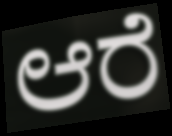
ಆರೆ